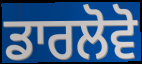
ਡਾਰਲੋਵੋ